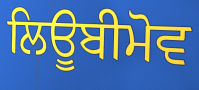
ਲਿਊਬੀਮੋਵ